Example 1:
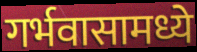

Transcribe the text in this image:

गर्भवासामध्ये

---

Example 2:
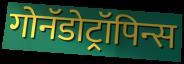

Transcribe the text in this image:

गोनॅडोट्रॉपिन्स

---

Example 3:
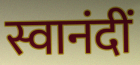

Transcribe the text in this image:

स्वानंदीं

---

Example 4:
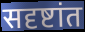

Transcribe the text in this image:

सदृष्टांत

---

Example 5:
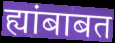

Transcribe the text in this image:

ह्यांबाबत